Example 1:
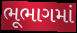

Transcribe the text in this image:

ભૂભાગમાં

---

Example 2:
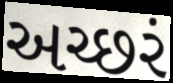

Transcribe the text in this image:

અચ્છરં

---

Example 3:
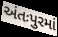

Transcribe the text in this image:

અંતઃપુરમાં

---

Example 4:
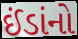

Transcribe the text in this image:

ઈંડાંનો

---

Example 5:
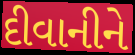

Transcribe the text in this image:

દીવાનીને